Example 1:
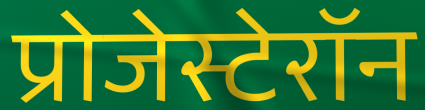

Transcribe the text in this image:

प्रोजेस्टेरॉन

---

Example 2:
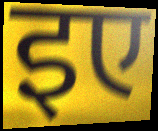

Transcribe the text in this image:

इए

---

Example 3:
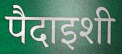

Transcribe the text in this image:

पैदाइशी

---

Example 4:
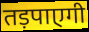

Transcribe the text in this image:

तड़पाएगी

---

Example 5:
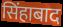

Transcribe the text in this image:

सिंहाबाद